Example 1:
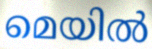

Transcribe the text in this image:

മെയിൽ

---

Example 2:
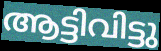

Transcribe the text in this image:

ആട്ടിവിട്ടു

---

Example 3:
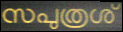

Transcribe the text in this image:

സപുത്രശ്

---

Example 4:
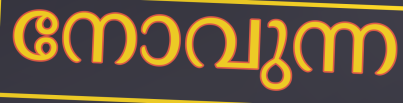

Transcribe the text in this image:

നോവുന്ന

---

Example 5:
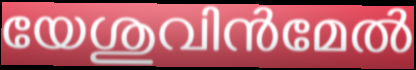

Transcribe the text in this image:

യേശുവിൻമേൽ